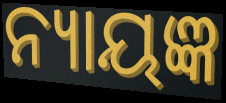
ନ୍ୟାୟଜ୍ଞ